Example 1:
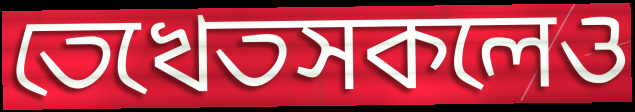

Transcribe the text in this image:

তেখেতসকলেও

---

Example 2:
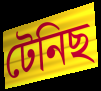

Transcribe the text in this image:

টেনিছ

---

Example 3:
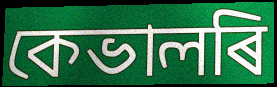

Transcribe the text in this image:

কেভালৰি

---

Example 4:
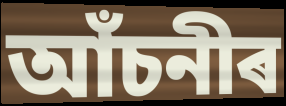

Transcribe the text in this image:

আঁচনীৰ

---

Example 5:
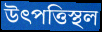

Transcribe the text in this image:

উৎপত্তিস্থল